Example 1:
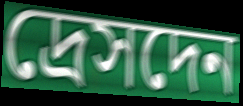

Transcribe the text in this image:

দ্রেসদেন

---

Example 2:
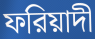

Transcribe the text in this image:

ফরিয়াদী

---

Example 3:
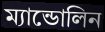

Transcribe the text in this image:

ম্যান্ডোলিন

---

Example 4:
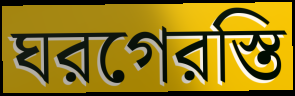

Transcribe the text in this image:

ঘরগেরস্তি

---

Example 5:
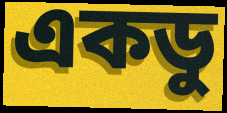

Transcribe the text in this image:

একডু